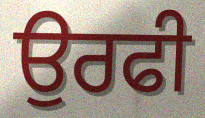
ਉਰਫੀ